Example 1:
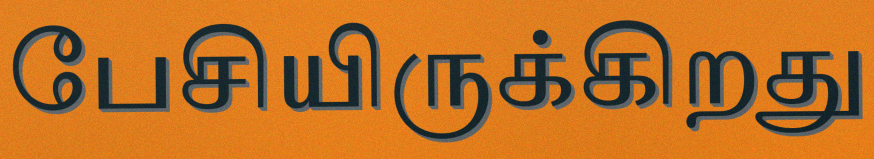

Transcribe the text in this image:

பேசியிருக்கிறது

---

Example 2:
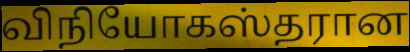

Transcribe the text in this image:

விநியோகஸ்தரான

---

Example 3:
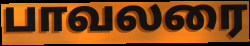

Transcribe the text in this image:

பாவலரை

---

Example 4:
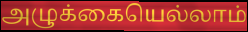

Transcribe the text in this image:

அழுக்கையெல்லாம்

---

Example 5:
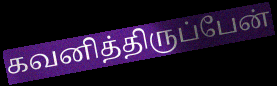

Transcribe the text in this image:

கவனித்திருப்பேன்